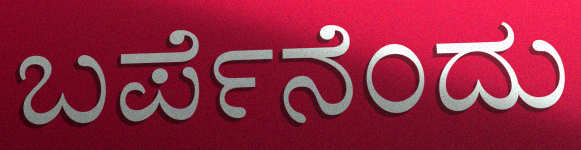
ಬರ್ಪೆನೆಂದು